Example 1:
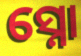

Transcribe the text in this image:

ସ୍ନୋ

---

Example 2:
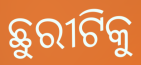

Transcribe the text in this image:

ଛୁରୀଟିକୁ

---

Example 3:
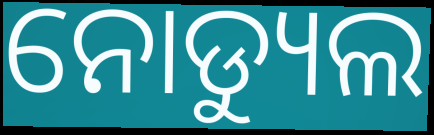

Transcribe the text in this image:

ନୋଡ୍ୟୁଲ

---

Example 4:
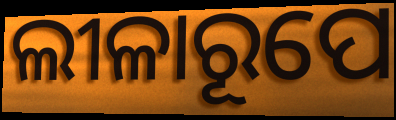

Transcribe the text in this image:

ଲୀଳାରୂପେ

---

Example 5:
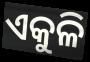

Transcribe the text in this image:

ଏକୁଳି